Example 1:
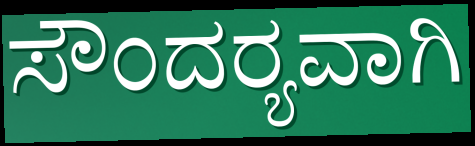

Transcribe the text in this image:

ಸೌಂದರ‍್ಯವಾಗಿ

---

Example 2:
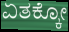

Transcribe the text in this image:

ಏತಕ್ಕೋ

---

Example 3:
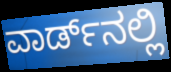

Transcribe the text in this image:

ವಾರ್ಡ್‌ನಲ್ಲಿ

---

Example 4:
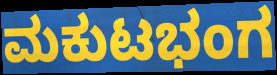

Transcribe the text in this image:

ಮಕುಟಭಂಗ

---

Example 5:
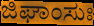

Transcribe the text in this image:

ಜಿಘಾಂಸುಃ